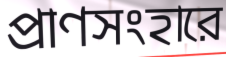
প্রাণসংহারে